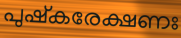
പുഷ്കരേക്ഷണഃ